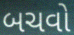
બચવો